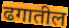
ढगातील